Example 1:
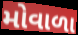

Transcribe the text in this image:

મોવાળા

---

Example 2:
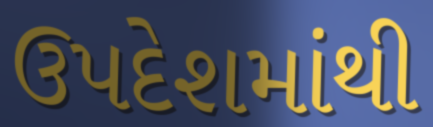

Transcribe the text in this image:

ઉપદેશમાંથી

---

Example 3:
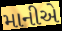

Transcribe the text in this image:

માનીએ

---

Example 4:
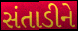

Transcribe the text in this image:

સંતાડીને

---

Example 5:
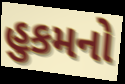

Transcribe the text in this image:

હુકમનો